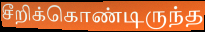
சீறிக்கொண்டிருந்த